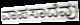
ವಾಪಸಾದೆವು